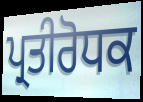
ਪ੍ਰਤੀਰੋਧਕ